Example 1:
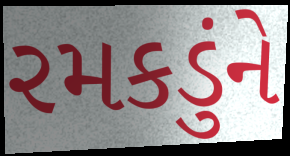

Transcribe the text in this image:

રમકડુંને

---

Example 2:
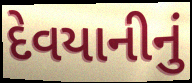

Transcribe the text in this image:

દેવયાનીનું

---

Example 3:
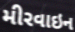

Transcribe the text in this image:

મીરવાઇન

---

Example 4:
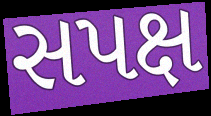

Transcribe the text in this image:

સપક્ષ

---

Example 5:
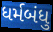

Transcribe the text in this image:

ધર્મબંધુ